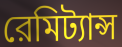
রেমিট্যান্স